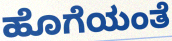
ಹೊಗೆಯಂತೆ